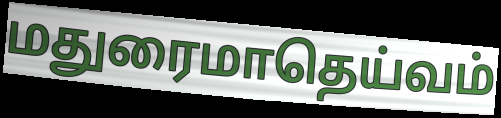
மதுரைமாதெய்வம்